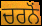
ਚਰਨੋਂ